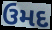
ઉમદ